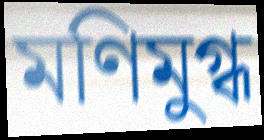
মণিমুগ্ধ